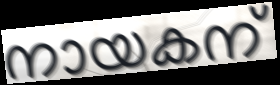
നായകന്